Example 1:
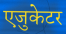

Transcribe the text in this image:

एजुकेटर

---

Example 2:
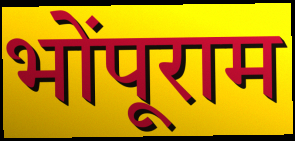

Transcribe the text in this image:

भोंपूराम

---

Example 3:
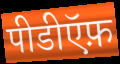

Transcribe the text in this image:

पीडीऍफ़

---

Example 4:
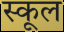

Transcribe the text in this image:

स्कूल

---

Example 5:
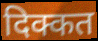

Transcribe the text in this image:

दिक्कत